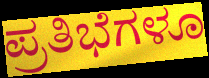
ಪ್ರತಿಭೆಗಳೂ